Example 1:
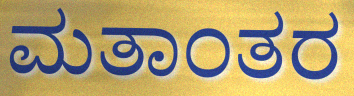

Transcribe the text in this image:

ಮತಾಂತರ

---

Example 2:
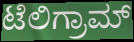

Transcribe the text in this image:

ಟೆಲಿಗ್ರಾಮ್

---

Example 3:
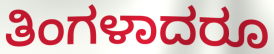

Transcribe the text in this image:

ತಿಂಗಳಾದರೂ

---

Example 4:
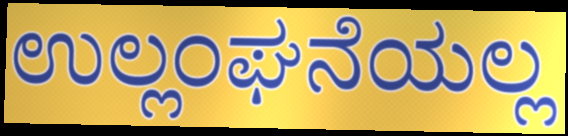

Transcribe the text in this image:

ಉಲ್ಲಂಘನೆಯಲ್ಲ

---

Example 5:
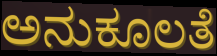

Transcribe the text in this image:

ಅನುಕೂಲತೆ